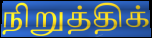
நிறுத்திக்